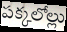
పక్కలోల్లు